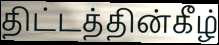
திட்டத்தின்கீழ்